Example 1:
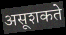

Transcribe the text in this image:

असूशकते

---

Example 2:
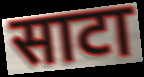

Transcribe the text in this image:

साटा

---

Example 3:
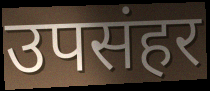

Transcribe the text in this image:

उपसंहर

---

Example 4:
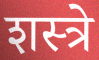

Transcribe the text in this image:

शस्त्रे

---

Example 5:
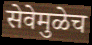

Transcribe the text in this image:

सेवेमुळेच